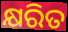
କ୍ଷରିତ